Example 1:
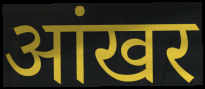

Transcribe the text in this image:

आंखर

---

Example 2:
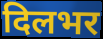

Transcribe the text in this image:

दिलभर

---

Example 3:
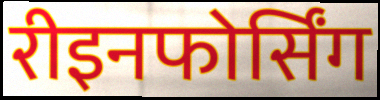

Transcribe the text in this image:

रीइनफोर्सिंग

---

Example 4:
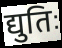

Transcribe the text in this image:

द्युतिः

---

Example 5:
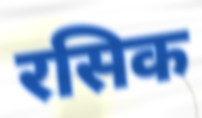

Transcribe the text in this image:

रसिक